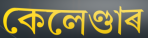
কেলেণ্ডাৰ